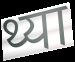
थ्या